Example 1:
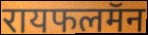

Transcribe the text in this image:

रायफलमॅन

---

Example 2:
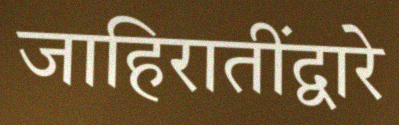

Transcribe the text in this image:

जाहिरातींद्वारे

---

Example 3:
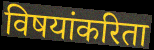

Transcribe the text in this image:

विषयांकरिता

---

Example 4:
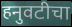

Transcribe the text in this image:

हनुवटीचा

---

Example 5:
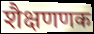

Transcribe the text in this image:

शैक्षणणक